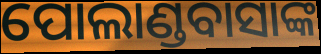
ପୋଲାଣ୍ଡବାସାଙ୍କ